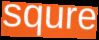
squre